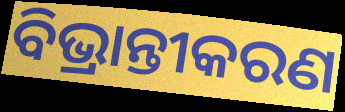
ବିଭ୍ରାନ୍ତୀକରଣ